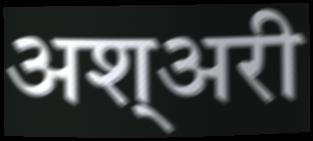
अश्अरी